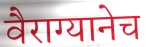
वैराग्यानेच